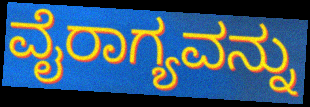
ವೈರಾಗ್ಯವನ್ನು